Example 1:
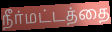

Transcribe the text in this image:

நீர்மட்டத்தை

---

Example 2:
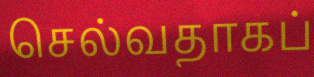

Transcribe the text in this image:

செல்வதாகப்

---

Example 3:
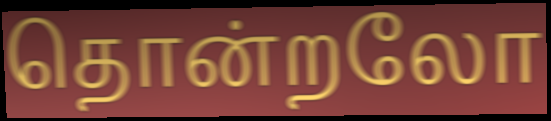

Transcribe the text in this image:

தொன்றலோ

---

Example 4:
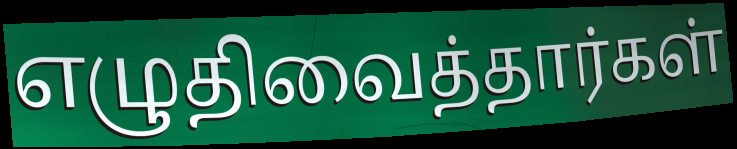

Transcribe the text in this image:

எழுதிவைத்தார்கள்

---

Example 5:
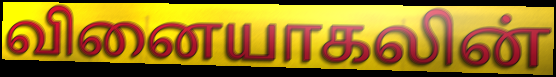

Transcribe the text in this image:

வினையாகலின்